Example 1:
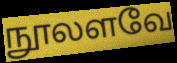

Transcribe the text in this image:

நூலளவே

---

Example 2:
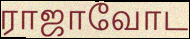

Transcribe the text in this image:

ராஜாவோட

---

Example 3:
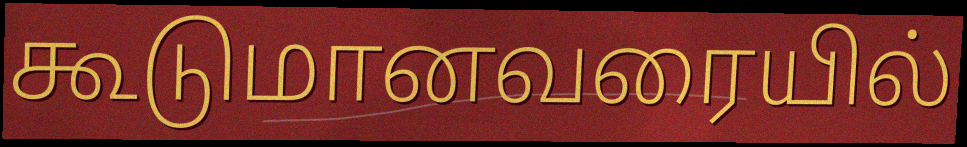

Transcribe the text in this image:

கூடுமானவரையில்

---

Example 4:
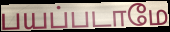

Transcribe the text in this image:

பயப்படாமே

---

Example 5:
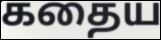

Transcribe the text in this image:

கதைய